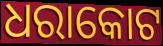
ଧରାକୋଟ